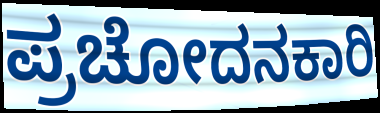
ಪ್ರಚೋದನಕಾರಿ